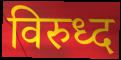
विरुध्द